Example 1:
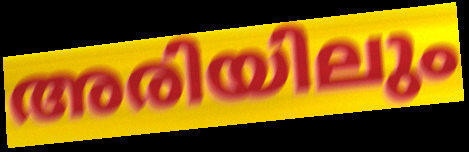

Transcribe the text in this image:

അരിയിലും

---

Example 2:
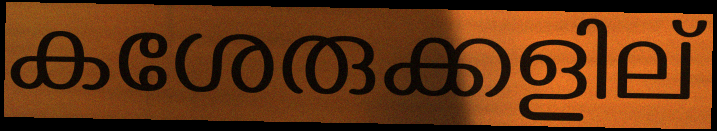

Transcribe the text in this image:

കശേരുക്കളില്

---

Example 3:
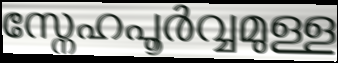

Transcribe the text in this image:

സ്നേഹപൂർവ്വമുള്ള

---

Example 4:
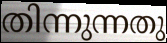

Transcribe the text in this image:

തിന്നുന്നതു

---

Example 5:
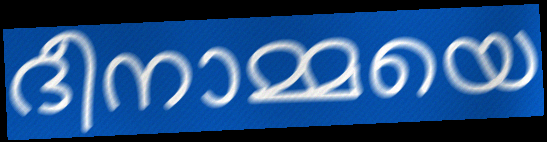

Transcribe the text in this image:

ദീനാമ്മയെ